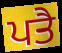
ਪਤੈ